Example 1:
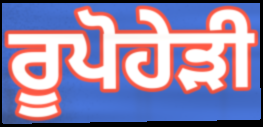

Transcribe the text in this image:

ਰੂਪੋਹੇੜੀ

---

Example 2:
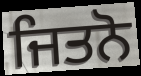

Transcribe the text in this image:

ਜਿਤਨੋ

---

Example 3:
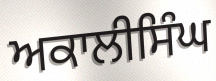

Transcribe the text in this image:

ਅਕਾਲੀਸਿੰਘ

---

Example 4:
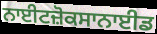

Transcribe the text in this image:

ਨਾਈਟਜ਼ੋਕਸਾਨਾਈਡ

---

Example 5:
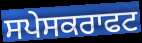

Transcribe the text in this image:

ਸਪੇਸਕਰਾਫਟ